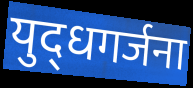
युद्धगर्जना